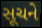
સૂચને